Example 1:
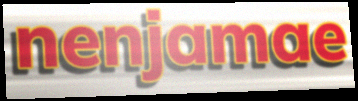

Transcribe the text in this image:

nenjamae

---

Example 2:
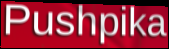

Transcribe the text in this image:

Pushpika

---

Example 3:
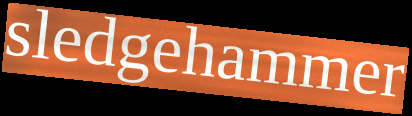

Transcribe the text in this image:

sledgehammer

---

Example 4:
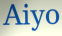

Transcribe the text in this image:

Aiyo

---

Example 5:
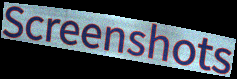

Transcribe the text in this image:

Screenshots